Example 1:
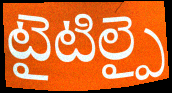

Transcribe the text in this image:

టైటిల్పై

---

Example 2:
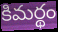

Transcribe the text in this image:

కిమర్థం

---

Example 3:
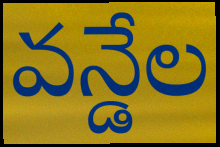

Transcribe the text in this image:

వన్డేల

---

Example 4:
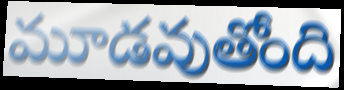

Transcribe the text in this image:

మూడవుతోంది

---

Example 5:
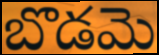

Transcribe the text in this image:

బొడమె